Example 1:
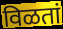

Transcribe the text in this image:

विळतां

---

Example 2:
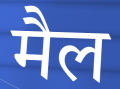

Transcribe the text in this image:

मैल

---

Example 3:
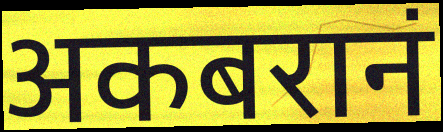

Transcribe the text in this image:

अकबरानं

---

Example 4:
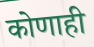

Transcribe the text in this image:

कोणाही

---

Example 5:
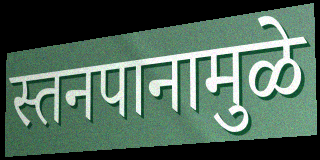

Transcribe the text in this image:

स्तनपानामुळे